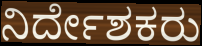
ನಿರ್ದೇಶಕರು